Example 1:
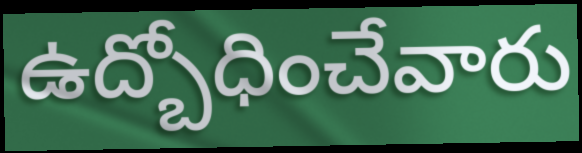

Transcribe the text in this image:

ఉద్బోధించేవారు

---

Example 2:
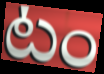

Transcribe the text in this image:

టం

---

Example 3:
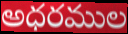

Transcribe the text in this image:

అధరముల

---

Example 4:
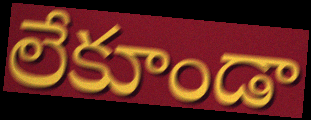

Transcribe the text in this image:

లేకూండా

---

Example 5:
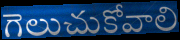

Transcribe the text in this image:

గెలుచుకోవాలి